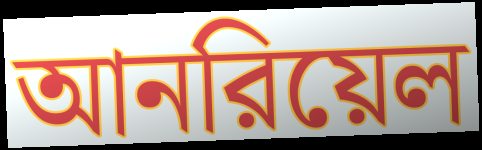
আনরিয়েল